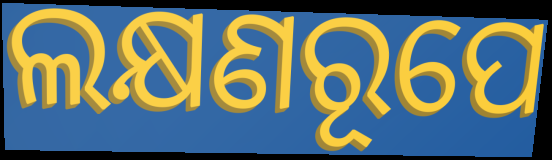
ଲକ୍ଷଣରୂପେ